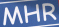
MHR